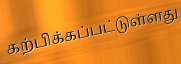
கற்பிக்கப்பட்டுள்ளது